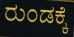
ರುಂಡಕ್ಕೆ